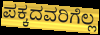
ಪಕ್ಕದವರಿಗೆಲ್ಲ